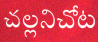
చల్లనిచోట